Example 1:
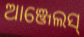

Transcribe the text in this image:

ଆଞ୍ଜେଲସ୍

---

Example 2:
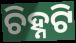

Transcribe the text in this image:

ଚିହ୍ନଟି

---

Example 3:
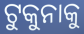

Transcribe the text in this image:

ଟୁକୁନାକୁ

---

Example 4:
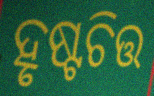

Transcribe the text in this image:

ହୃଷ୍ଟଚିତ୍ତ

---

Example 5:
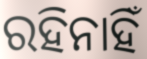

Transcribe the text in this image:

ରହିନାହିଁ